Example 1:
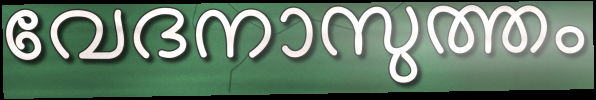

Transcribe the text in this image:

വേദനാസുത്തം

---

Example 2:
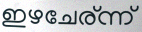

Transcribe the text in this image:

ഇഴചേര്ന്ന്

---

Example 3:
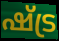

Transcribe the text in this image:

ഷ്ട്ര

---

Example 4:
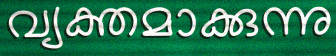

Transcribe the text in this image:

വ്യക്തമാക്കുന്നു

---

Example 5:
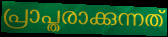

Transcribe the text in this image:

പ്രാപ്തരാക്കുന്നത്